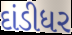
દાંડીધર